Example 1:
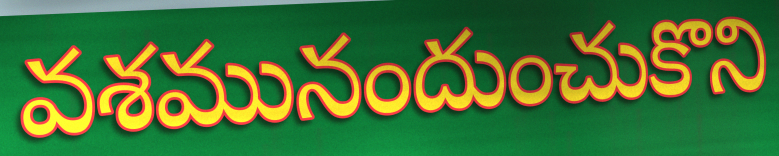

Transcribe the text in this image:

వశమునందుంచుకొని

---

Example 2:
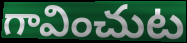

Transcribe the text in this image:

గావించుట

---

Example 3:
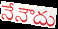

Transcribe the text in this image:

నేనౌదు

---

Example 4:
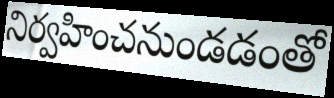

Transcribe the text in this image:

నిర్వహించనుండడంతో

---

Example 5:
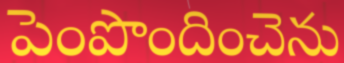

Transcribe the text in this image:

పెంపొందించెను